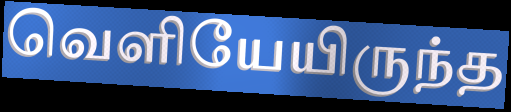
வெளியேயிருந்த